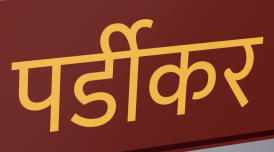
पर्डीकर